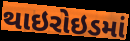
થાઇરોઇડમાં